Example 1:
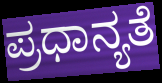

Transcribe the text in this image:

ಪ್ರಧಾನ್ಯತೆ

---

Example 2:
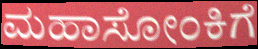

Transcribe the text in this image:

ಮಹಾಸೋಂಕಿಗೆ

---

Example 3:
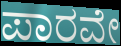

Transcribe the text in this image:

ಪಾರವೇ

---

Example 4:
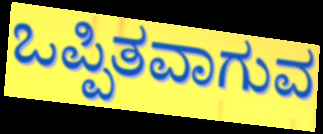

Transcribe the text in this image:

ಒಪ್ಪಿತವಾಗುವ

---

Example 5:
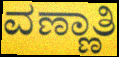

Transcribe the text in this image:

ವಣ್ಣಾತಿ